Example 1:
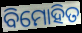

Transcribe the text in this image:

ବିମୋହିତ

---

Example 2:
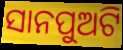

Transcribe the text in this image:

ସାନପୁଅଟି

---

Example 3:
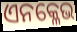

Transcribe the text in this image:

ଏନକ୍ଳେଭ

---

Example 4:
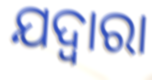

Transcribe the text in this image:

ଯଦ୍ୱାରା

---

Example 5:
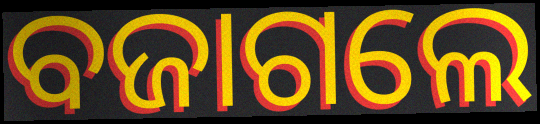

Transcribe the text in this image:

ବଜାଗଲେ